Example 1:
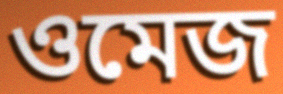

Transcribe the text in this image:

ওমেজ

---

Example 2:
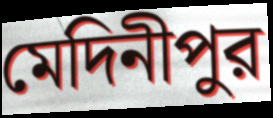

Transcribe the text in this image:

মেদিনীপুর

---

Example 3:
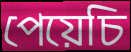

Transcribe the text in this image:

পেয়েচি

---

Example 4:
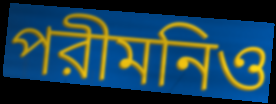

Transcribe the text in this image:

পরীমনিও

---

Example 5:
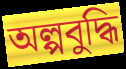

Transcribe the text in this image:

অল্পবুদ্ধি